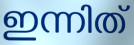
ഇന്നിത്